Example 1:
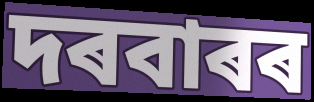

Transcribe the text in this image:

দৰবাৰৰ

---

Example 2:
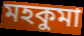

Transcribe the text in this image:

মহকুমা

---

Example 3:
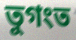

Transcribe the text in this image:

তুগংত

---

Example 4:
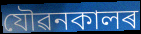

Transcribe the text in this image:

যৌৱনকালৰ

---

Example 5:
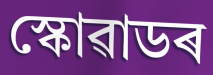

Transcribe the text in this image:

স্কোৱাডৰ